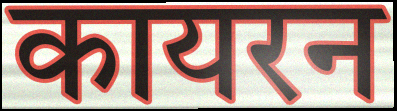
कायरन